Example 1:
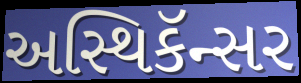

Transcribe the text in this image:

અસ્થિકૅન્સર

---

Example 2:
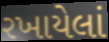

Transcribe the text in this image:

રખાયેલાં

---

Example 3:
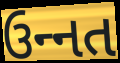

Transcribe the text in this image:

ઉન્‍નત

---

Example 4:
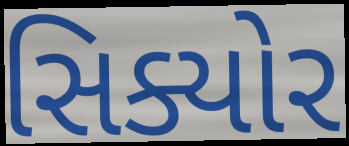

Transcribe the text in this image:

સિક્યોર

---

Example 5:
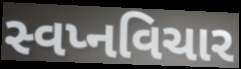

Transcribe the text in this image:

સ્વપ્નવિચાર